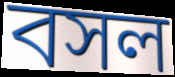
বসল